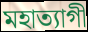
মহাত্যাগী